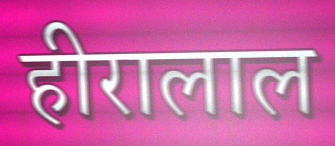
हीरालाल